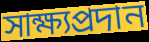
সাক্ষ্যপ্রদান